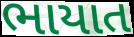
ભાયાત